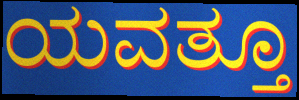
ಯವತ್ತೂ